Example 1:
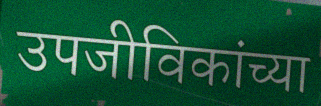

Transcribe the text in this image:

उपजीविकांच्या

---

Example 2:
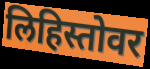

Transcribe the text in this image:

लिहिस्तोवर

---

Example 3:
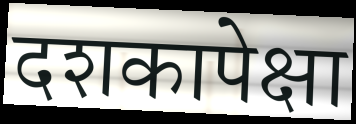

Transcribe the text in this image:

दशकापेक्षा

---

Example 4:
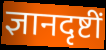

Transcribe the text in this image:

ज्ञानदृष्टीं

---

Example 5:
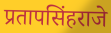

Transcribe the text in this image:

प्रतापसिंहराजे